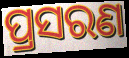
ପ୍ରସରଣ